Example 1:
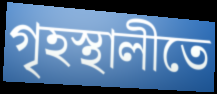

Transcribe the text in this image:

গৃহস্থালীতে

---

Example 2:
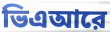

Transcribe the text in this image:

ভিএআরে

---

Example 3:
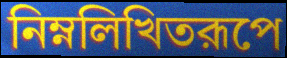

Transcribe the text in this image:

নিম্নলিখিতরূপে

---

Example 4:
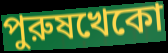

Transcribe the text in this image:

পুরুষখেকো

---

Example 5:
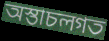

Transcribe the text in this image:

অস্তাচলগত